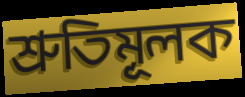
শ্রুতিমূলক